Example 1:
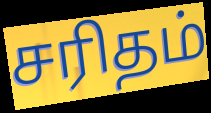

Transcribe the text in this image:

சரிதம்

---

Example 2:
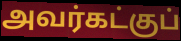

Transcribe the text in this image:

அவர்கட்குப்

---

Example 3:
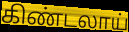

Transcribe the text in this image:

கிண்டலாய்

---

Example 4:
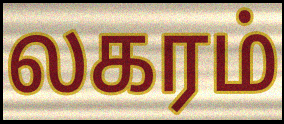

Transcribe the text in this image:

லகரம்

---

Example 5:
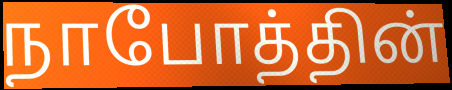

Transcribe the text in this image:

நாபோத்தின்